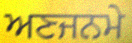
ਅਣਜਨਮੇ